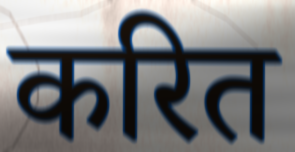
करित